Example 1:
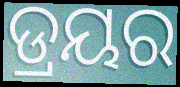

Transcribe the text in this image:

ଡ୍ରୟର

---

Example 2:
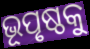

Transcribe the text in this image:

ଭୂପୃଷ୍ଠକୁ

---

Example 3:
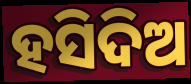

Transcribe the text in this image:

ହସିଦିଅ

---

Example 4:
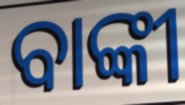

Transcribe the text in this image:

ବାଙ୍କୀ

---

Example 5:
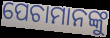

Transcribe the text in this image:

ପେଚାମାନଙ୍କୁ